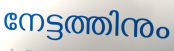
നേട്ടത്തിനും